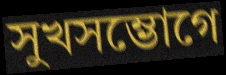
সুখসম্ভোগে